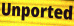
Unported